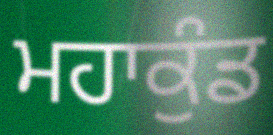
ਮਹਾਕੁੰਡ